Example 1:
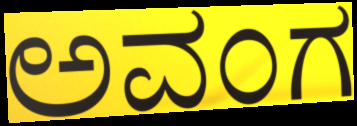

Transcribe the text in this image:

ಅವಂಗ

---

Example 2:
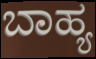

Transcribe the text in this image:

ಬಾಹ್ಯ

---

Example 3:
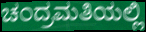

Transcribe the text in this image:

ಚಂದ್ರಮತಿಯಲ್ಲಿ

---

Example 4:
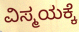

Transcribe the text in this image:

ವಿಸ್ಮಯಕ್ಕೆ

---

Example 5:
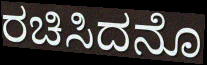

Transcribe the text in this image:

ರಚಿಸಿದನೊ